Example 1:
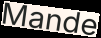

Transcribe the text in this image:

Mande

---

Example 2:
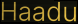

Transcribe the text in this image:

Haadu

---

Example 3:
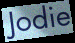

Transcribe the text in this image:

Jodie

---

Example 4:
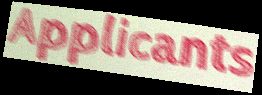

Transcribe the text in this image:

Applicants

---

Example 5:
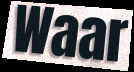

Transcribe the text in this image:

Waar